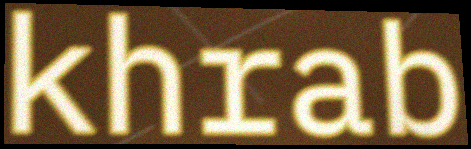
khrab